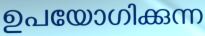
ഉപയോഗിക്കുന്ന